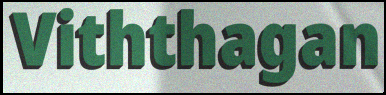
Viththagan